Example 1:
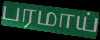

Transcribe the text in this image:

பரமாய்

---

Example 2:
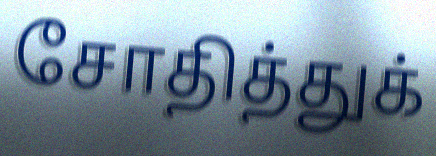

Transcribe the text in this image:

சோதித்துக்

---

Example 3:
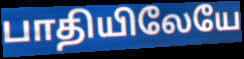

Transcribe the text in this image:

பாதியிலேயே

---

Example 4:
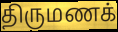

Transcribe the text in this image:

திருமணக்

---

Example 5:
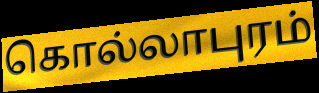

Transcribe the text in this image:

கொல்லாபுரம்